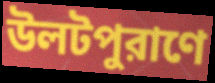
উলটপুরাণে